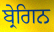
ਬ੍ਰੇਗਿਨ